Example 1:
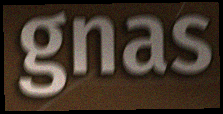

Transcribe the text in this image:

gnas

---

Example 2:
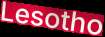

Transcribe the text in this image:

Lesotho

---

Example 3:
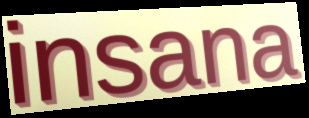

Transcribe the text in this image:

insana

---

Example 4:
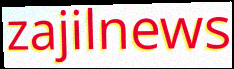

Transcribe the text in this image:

zajilnews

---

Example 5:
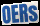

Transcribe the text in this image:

OERs